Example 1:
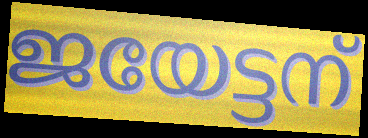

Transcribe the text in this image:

ജയേട്ടന്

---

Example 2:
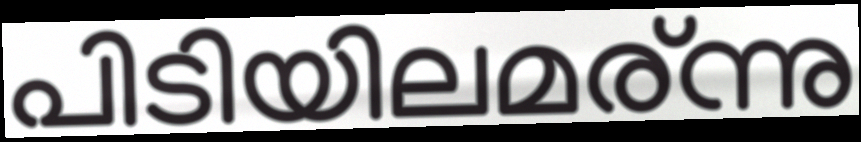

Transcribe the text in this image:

പിടിയിലമര്ന്നു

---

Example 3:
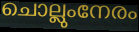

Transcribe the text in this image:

ചൊല്ലുംനേരം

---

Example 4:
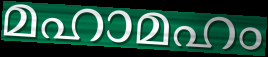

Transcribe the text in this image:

മഹാമഹം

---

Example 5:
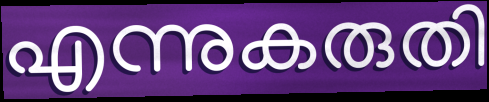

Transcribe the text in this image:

എന്നുകരുതി